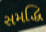
સમદ્ધિ